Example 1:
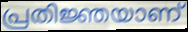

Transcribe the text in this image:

പ്രതിജ്ഞയാണ്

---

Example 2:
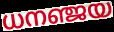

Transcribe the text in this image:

ധനഞ്ജയ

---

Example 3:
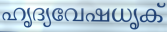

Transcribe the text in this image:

ഹൃദ്യവേഷധൃക്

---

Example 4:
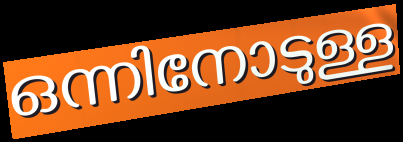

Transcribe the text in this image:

ഒന്നിനോടുള്ള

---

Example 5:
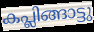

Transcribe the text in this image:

കപ്ലിങ്ങാട്ടു